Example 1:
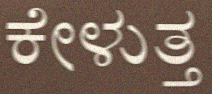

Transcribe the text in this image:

ಕೇಳುತ್ತ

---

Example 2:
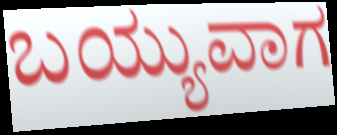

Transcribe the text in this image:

ಬಯ್ಯುವಾಗ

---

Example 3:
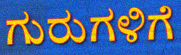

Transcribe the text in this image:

ಗುರುಗಳಿಗೆ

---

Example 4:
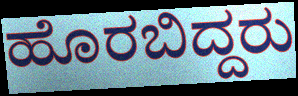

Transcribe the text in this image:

ಹೊರಬಿದ್ದರು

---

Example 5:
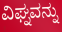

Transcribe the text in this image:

ವಿಘ್ನವನ್ನು